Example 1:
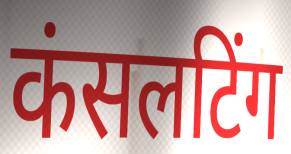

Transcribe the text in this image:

कंसलटिंग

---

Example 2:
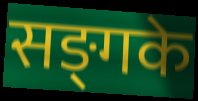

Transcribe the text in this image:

सङ्गके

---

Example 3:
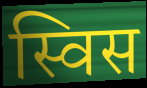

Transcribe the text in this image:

स्विस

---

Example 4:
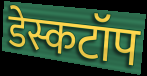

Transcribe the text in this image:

डेस्‍कटॉप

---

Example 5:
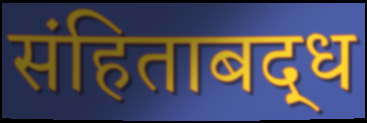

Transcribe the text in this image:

संहिताबद्ध